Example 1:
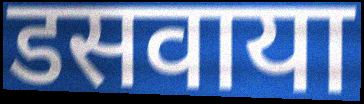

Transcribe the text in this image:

डसवाया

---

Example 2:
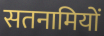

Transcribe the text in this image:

सतनामियों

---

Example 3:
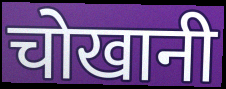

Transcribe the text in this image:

चोखानी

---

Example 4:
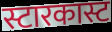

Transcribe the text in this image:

स्टारकास्ट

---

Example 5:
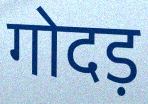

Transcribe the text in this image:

गोदड़